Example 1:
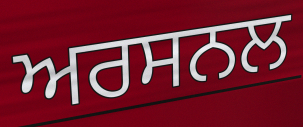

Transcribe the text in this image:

ਅਰਸਨਲ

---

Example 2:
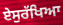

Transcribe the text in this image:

ਏਸੁਰੱਖਿਆ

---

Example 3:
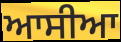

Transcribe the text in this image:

ਆਸੀਆ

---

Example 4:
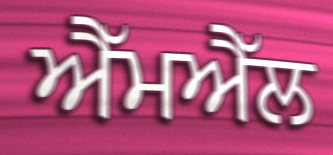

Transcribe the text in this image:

ਐੱਮਐੱਲ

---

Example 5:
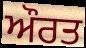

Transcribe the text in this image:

ਔਰਤ